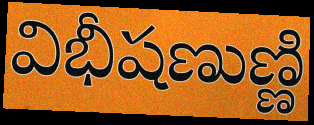
విభీషణుణ్ణి